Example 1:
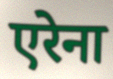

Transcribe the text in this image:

एरेना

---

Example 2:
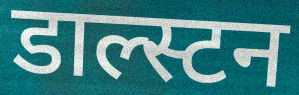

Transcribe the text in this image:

डाल्स्टन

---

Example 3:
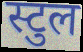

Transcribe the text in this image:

स्टुल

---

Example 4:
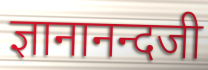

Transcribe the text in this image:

ज्ञानानन्दजी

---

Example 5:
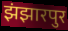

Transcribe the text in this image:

झंझारपुर